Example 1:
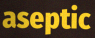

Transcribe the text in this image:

aseptic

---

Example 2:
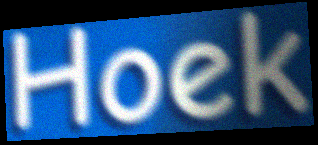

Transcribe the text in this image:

Hoek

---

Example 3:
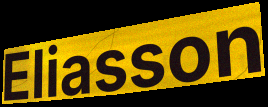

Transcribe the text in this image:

Eliasson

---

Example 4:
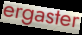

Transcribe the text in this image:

ergaster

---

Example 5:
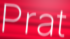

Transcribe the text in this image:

Prat